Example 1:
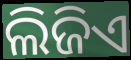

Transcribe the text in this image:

ଲିଜିଏ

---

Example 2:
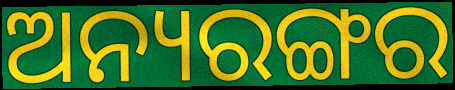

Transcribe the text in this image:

ଅନ୍ୟରଙ୍ଗର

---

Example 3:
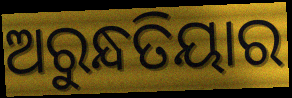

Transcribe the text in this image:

ଅରୁନ୍ଧତିୟାର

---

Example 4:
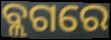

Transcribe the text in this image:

ବ୍ଲଗରେ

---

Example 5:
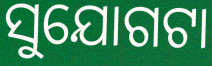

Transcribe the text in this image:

ସୁଯୋଗଟା